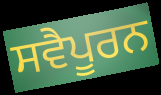
ਸਵੈਪੂਰਨ